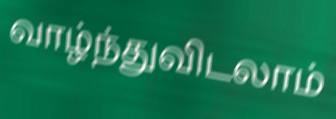
வாழ்ந்துவிடலாம்